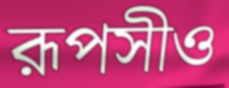
রূপসীও